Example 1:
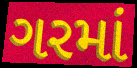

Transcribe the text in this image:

ગરમાં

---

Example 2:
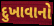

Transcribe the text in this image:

દુખાવાનો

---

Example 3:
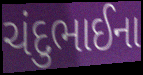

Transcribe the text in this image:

ચંદુભાઈના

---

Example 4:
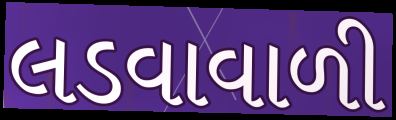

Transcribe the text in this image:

લડવાવાળી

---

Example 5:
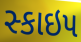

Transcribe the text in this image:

સ્કાઇપ